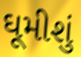
ઘૂમીશું